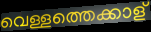
വെള്ളത്തെക്കാള്